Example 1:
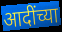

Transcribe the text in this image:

आदींच्या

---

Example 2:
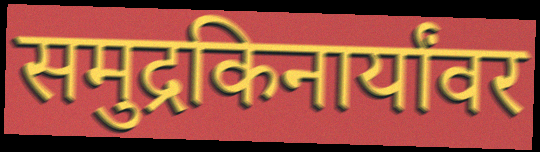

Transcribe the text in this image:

समुद्रकिनार्यांवर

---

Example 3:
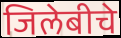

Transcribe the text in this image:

जिलेबीचे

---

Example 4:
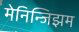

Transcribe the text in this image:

मेनिन्जिझम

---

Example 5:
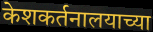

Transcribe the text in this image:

केशकर्तनालयाच्या